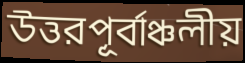
উত্তরপূর্বাঞ্চলীয়